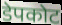
डेपकोट